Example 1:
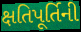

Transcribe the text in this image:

ક્ષતિપૂર્તિની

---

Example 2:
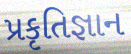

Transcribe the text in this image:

પ્રકૃતિજ્ઞાન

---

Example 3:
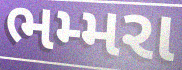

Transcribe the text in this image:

ભમ્મરા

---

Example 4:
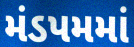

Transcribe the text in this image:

મંડપમમાં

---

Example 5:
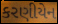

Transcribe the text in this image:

કરણીયેન